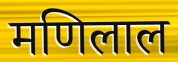
मणिलाल